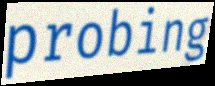
probing